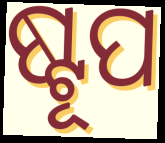
ଷ୍ଟୂପ